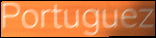
Portuguez